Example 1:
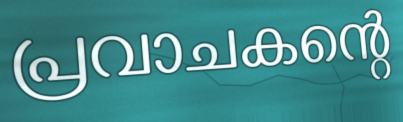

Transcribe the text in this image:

പ്രവാചകന്റെ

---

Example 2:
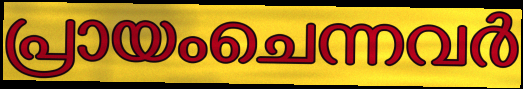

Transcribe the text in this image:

പ്രായംചെന്നവർ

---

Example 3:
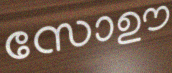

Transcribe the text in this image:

സോഊ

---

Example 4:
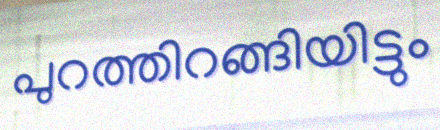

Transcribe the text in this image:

പുറത്തിറങ്ങിയിട്ടും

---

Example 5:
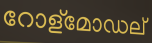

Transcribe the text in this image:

റോള്മോഡല്